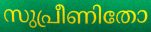
സുപ്രീണിതോ